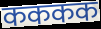
कककक